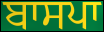
ਬਾਸਪਾ